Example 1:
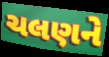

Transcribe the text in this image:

ચલણને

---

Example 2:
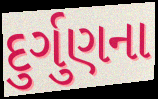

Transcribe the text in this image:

દુર્ગુણના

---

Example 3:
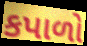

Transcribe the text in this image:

કપાળો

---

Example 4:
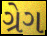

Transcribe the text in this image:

ગ્રેગ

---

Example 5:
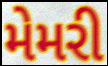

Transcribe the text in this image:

મેમરી